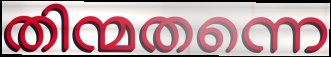
തിന്മതന്നെ